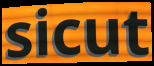
sicut